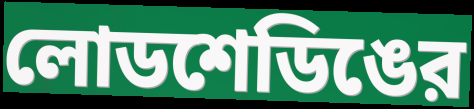
লোডশেডিঙের